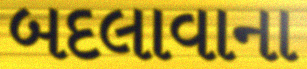
બદલાવાના